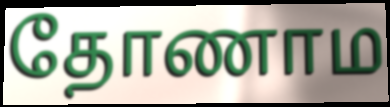
தோணாம